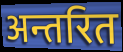
अन्तरित